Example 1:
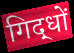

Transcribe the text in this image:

गिद्धों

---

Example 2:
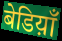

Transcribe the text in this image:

बेडिय़ाँ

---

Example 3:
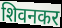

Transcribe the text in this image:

शिवनकर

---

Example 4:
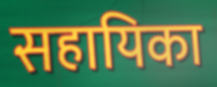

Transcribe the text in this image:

सहायिका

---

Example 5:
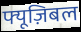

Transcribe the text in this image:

फ्यूज़िबल